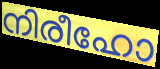
നിരീഹോ